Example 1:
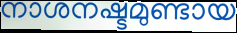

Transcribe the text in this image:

നാശനഷ്ടമുണ്ടായ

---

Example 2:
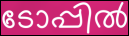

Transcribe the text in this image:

ടോപ്പിൽ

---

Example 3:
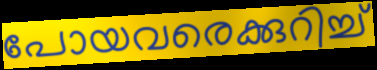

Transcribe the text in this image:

പോയവരെക്കുറിച്ച്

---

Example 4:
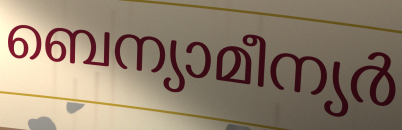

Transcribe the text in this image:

ബെന്യാമീന്യർ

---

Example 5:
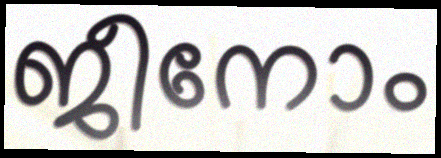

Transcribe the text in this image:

ജീനോം